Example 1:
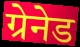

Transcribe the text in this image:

ग्रेनेड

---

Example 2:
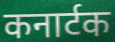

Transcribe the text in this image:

कनार्टक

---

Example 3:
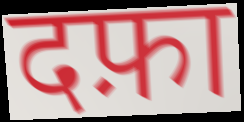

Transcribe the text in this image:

दफ़ा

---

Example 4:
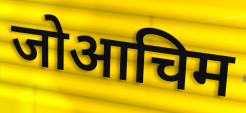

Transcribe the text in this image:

जोआचिम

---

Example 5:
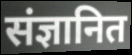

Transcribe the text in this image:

संज्ञानित